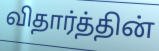
விதார்த்தின்